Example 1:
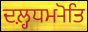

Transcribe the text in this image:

ਦਲ਼੍ਹਧਮ੍ਮੋਤਿ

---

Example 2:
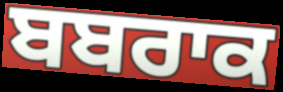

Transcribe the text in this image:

ਬਬਰਾਕ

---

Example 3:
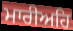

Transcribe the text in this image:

ਮਾਰੀਅਹਿ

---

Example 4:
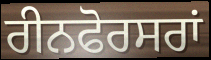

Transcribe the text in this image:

ਰੀਨਫੋਰਸਰਾਂ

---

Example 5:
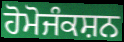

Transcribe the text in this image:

ਹੋਮੋਜੰਕਸ਼ਨ